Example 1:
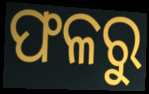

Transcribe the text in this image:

ଫଳରୁ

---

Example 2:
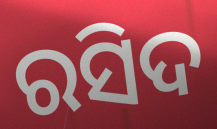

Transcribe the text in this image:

ରସିଦ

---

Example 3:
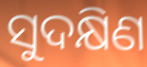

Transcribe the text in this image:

ସୁଦକ୍ଷିଣ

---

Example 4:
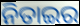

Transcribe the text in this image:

ନିତାଇର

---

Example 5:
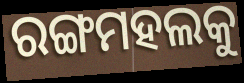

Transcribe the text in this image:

ରଙ୍ଗମହଲକୁ